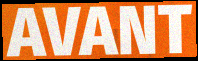
AVANT